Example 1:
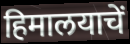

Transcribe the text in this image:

हिमालयाचें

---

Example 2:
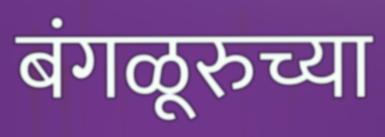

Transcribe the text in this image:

बंगळूरुच्या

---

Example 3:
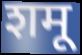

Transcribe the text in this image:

शमू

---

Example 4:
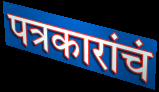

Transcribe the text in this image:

पत्रकारांचं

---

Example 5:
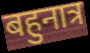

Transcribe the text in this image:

बहुनात्र